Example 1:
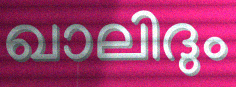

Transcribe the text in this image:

ഖാലിദും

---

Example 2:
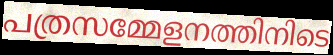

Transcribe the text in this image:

പത്രസമ്മേളനത്തിനിടെ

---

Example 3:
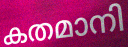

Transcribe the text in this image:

കതമാനി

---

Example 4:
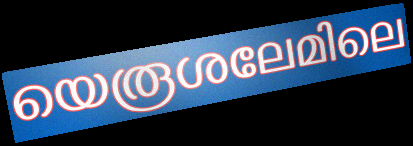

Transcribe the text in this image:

യെരൂശലേമിലെ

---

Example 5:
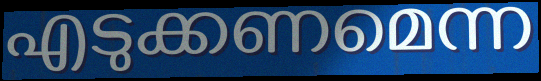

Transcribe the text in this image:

എടുക്കണമെന്ന